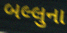
બલ્લુના